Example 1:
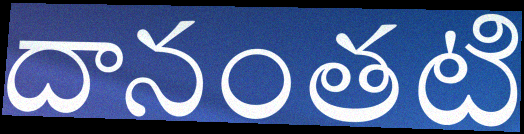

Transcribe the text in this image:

దానంతటి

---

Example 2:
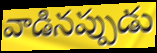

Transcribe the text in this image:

వాడినప్పుడు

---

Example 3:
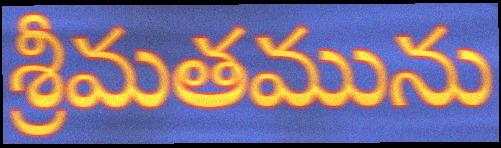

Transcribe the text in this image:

శ్రీమతమును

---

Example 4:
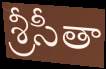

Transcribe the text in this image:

శ్రీసీతా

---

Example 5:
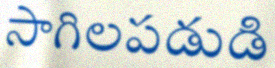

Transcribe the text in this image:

సాగిలపడుడి